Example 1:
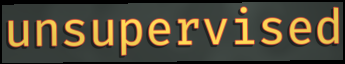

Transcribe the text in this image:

unsupervised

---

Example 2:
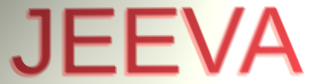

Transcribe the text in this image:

JEEVA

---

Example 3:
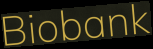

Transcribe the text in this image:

Biobank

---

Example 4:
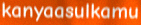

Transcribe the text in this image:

kanyaasulkamu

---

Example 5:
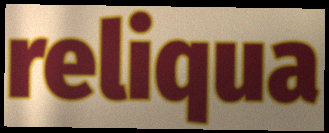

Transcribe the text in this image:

reliqua